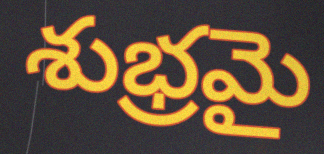
శుభ్రమై